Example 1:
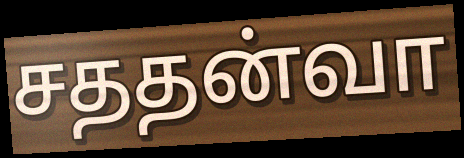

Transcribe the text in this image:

சததன்வா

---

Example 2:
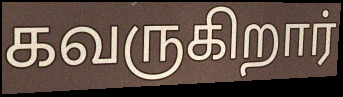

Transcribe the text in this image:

கவருகிறார்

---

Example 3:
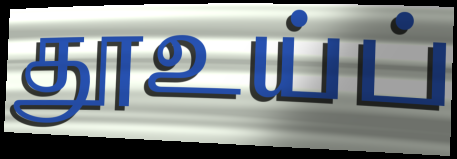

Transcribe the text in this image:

தூஉய்ப்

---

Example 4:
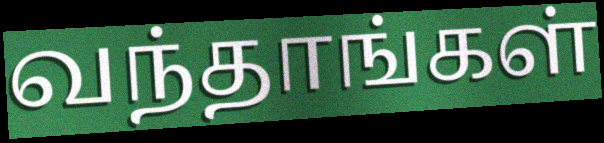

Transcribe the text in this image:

வந்தாங்கள்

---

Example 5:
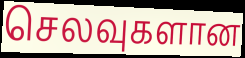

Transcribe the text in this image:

செலவுகளான